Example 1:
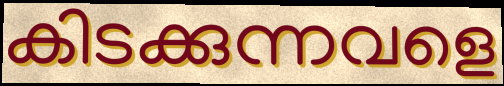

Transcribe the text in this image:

കിടക്കുന്നവളെ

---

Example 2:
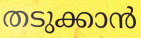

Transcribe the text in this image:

തടുക്കാൻ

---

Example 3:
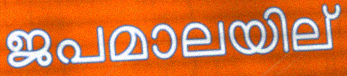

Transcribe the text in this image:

ജപമാലയില്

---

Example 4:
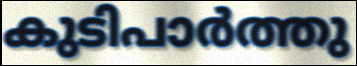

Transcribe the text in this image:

കുടിപാർത്തു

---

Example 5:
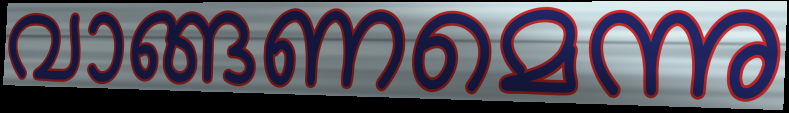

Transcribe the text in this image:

വാങ്ങണമെന്നു